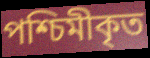
পশ্চিমীকৃত